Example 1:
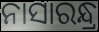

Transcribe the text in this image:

ନାସାରନ୍ଧ୍ର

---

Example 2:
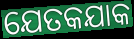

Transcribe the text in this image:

ଯେତକଯାକ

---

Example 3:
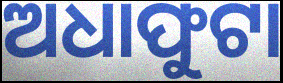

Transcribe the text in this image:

ଅଧାଫୁଟା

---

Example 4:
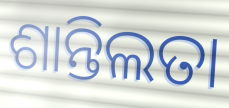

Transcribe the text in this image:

ଶାନ୍ତିଲତା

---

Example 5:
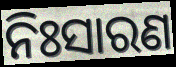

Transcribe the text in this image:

ନିଃସାରଣ